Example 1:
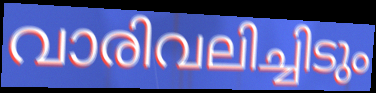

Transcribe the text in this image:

വാരിവലിച്ചിടും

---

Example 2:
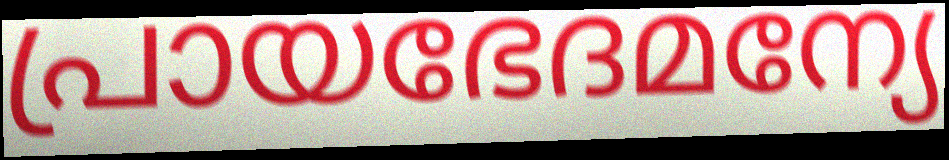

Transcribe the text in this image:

പ്രായഭേദമന്യേ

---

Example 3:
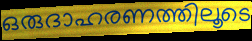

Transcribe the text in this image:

ഒരുദാഹരണത്തിലൂടെ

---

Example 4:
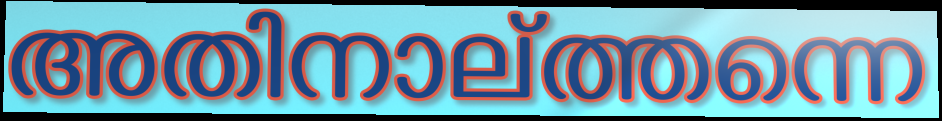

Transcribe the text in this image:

അതിനാല്ത്തന്നെ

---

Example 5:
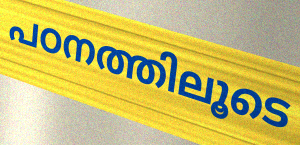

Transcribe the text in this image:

പഠനത്തിലൂടെ